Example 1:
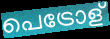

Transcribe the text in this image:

പെട്രോള്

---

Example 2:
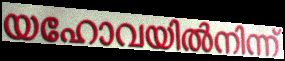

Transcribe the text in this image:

യഹോവയിൽനിന്ന്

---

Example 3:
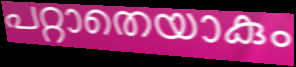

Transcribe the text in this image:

പറ്റാതെയാകും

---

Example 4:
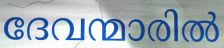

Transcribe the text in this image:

ദേവന്മാരിൽ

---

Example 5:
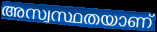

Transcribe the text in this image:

അസ്വസ്ഥതയാണ്